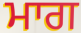
ਮਾਗ